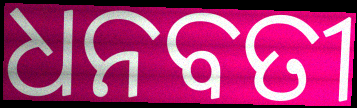
ଧନବତୀ